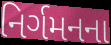
નિર્ગમનના